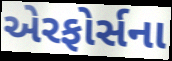
એરફોર્સના